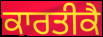
ਕਾਰਤੀਕੈ